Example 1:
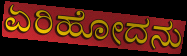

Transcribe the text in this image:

ಏರಿಹೋದನು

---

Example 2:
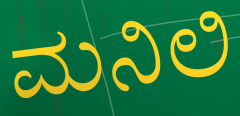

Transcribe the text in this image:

ಮನಿಲಿ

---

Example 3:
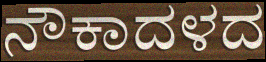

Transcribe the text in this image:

ನೌಕಾದಳದ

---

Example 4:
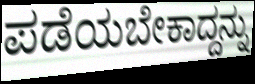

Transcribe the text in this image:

ಪಡೆಯಬೇಕಾದ್ದನ್ನು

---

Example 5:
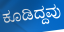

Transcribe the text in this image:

ಕೂಡಿದ್ದವು